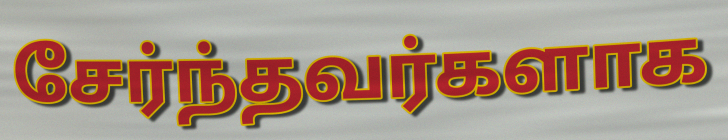
சேர்ந்தவர்களாக